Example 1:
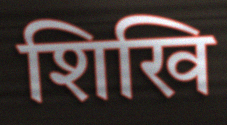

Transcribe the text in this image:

शिखि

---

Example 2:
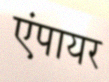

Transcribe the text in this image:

एंपायर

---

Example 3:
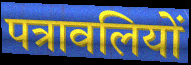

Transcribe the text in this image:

पत्रावलियों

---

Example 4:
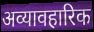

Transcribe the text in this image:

अव्यावहारिक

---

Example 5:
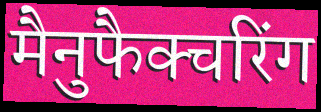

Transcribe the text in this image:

मैनुफैक्चरिंग